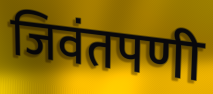
जिवंतपणी